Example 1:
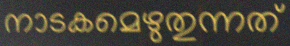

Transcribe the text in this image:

നാടകമെഴുതുന്നത്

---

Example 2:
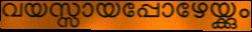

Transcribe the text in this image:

വയസ്സായപ്പോഴേയ്ക്കും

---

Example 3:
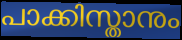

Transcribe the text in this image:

പാക്കിസ്താനും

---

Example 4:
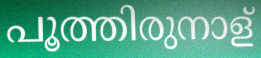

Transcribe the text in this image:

പൂത്തിരുനാള്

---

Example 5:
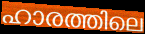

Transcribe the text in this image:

ഹാരത്തിലെ